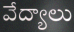
వేద్యాలు